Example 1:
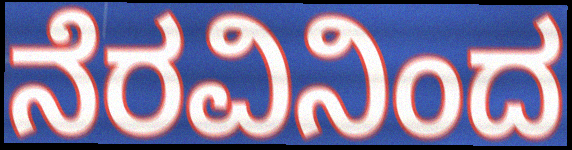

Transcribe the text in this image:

ನೆರವಿನಿಂದ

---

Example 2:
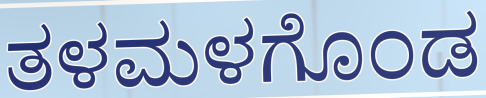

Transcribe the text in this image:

ತಳಮಳಗೊಂಡ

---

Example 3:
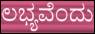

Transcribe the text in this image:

ಲಭ್ಯವೆಂದು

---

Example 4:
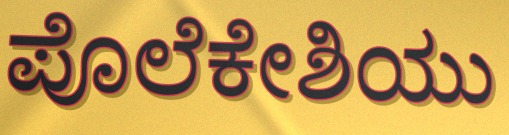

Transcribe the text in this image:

ಪೊಲೆಕೇಶಿಯು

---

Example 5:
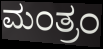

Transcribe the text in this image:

ಮಂತ್ರಂ